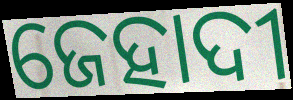
ଜେହାଦୀ